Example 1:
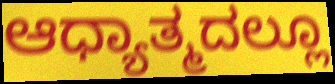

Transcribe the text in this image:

ಆಧ್ಯಾತ್ಮದಲ್ಲೂ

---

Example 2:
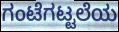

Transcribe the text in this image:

ಗಂಟೆಗಟ್ಟಲೆಯ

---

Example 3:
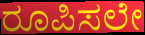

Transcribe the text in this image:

ರೂಪಿಸಲೇ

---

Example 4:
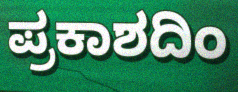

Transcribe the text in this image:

ಪ್ರಕಾಶದಿಂ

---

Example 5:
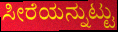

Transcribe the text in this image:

ಸೀರೆಯನ್ನುಟ್ಟು